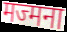
मज्मना